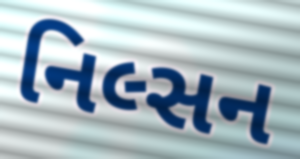
નિલ્સન